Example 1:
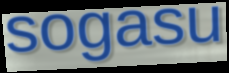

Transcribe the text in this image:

sogasu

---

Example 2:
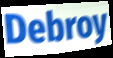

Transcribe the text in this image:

Debroy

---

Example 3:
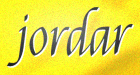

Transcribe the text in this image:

jordar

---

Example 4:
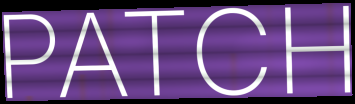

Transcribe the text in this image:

PATCH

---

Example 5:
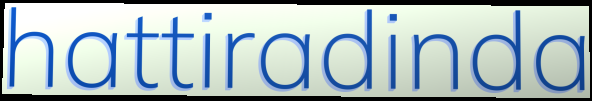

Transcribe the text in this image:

hattiradinda